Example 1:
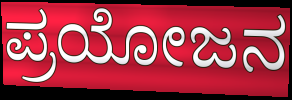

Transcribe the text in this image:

ಪ್ರಯೋಜನ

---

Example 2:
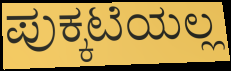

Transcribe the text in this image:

ಪುಕ್ಕಟೆಯಲ್ಲ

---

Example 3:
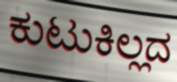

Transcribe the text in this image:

ಕುಟುಕಿಲ್ಲದ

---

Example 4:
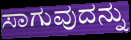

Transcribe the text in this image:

ಸಾಗುವುದನ್ನು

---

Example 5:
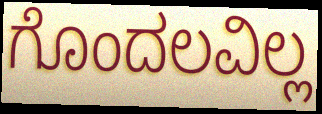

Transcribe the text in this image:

ಗೊಂದಲವಿಲ್ಲ